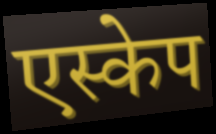
एस्केप